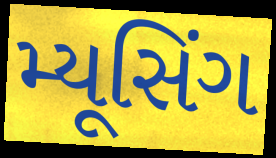
મ્યૂસિંગ